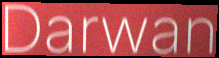
Darwan